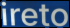
ireto